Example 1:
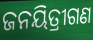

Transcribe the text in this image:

ଜନୟିତ୍ରୀଗଣ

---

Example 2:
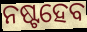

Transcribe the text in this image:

ନଷ୍ଟହେବ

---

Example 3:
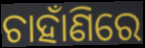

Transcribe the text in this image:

ଚାହାଁଣିରେ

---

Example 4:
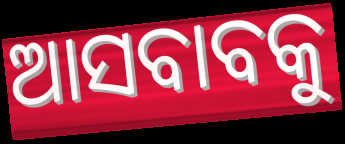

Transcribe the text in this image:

ଆସବାବକୁ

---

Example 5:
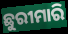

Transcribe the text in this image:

ଛୁରୀମାରି